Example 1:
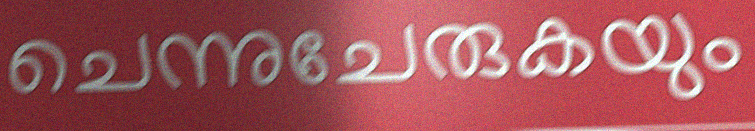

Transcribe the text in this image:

ചെന്നുചേരുകയും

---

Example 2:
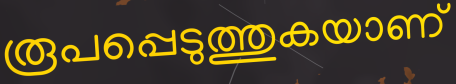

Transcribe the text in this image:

രൂപപ്പെടുത്തുകയാണ്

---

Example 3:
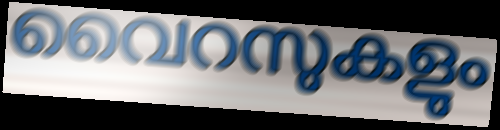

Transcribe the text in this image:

വൈറസുകളും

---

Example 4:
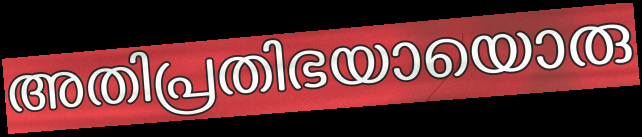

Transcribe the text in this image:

അതിപ്രതിഭയായൊരു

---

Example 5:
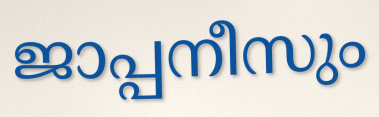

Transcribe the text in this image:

ജാപ്പനീസും